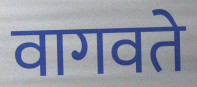
वागवते